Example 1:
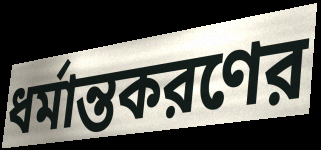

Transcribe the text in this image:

ধর্মান্তকরণের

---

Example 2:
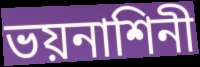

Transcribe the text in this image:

ভয়নাশিনী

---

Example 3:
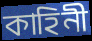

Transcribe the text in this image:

কাহিনী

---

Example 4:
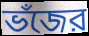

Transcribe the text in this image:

ভঁজের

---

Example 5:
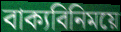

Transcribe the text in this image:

বাক্যবিনিময়ে